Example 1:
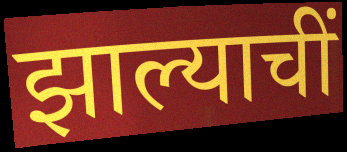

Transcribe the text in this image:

झाल्याचीं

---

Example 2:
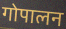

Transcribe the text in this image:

गोपालन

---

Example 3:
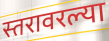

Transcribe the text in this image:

स्तरावरल्या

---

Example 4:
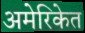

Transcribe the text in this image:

अमेरिकेत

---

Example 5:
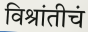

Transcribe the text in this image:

विश्रांतीचं